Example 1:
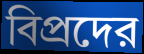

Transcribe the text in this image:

বিপ্রদের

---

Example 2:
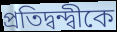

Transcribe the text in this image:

প্রতিদ্বন্দ্বীকে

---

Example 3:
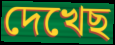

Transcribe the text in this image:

দেখেছ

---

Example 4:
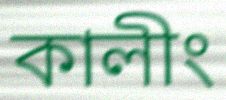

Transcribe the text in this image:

কালীং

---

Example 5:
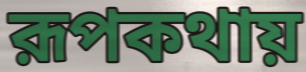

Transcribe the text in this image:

রূপকথায়